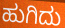
ಹುಗಿದು